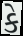
કે